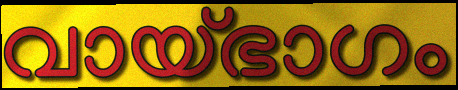
വായ്ഭാഗം